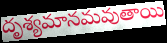
దృశ్యమానమవుతాయి